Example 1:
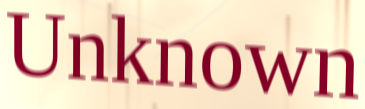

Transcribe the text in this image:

Unknown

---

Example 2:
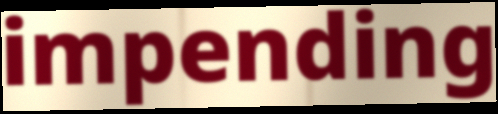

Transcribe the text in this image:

impending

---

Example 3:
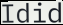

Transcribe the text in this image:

Idid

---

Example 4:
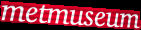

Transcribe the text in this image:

metmuseum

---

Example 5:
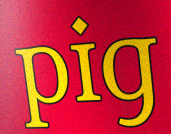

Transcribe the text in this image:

pig